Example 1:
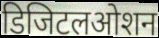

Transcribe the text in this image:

डिजिटलओशन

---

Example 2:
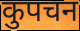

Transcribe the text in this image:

कुपचन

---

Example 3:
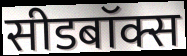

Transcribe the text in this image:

सीडबॉक्स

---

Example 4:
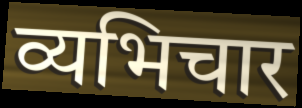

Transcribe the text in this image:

व्यभिचार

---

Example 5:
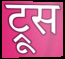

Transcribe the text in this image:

ट्रूस